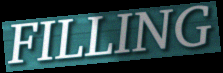
FILLING